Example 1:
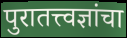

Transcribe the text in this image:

पुरातत्त्वज्ञांचा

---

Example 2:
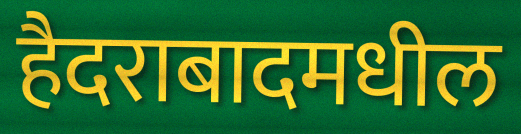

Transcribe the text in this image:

हैदराबादमधील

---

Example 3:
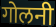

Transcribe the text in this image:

गोलनी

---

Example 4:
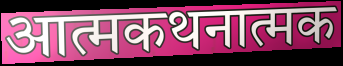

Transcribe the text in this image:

आत्मकथनात्मक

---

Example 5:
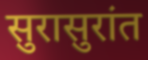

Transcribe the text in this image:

सुरासुरांत